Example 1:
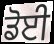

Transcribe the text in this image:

ਡੋਈ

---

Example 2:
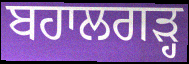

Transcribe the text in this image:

ਬਹਾਲਗੜ੍ਹ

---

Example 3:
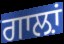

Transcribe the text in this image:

ਗਾਲ਼ਾਂ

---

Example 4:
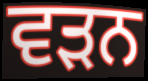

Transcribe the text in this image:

ਵੜਨ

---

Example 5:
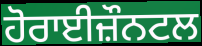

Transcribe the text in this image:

ਹੋਰਾਈਜ਼ੌਨਟਲ